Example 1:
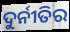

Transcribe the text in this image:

ଦୁର୍ନୀତିର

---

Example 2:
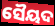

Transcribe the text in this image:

ସୈୟଦ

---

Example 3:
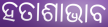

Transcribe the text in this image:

ହତାଶାଭାବ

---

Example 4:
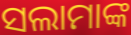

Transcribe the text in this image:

ସଲାମାଙ୍କ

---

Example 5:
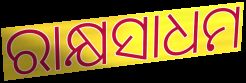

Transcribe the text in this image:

ରାକ୍ଷସାଧମ